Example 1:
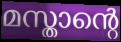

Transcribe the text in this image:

മസ്താന്റെ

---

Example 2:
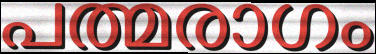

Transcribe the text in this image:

പത്മരാഗം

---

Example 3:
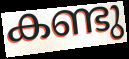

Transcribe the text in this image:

കണ്ടു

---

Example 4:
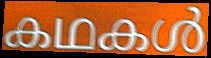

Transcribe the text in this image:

കഥകൾ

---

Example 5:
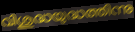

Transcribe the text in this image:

വിശുദ്ധയുദ്ധത്തിന്നു